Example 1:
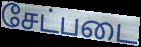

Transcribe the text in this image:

சேட்படை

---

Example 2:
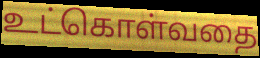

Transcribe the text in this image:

உட்கொள்வதை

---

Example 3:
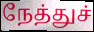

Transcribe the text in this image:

நேத்துச்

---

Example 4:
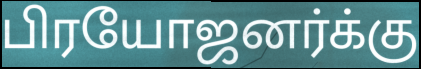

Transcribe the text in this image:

பிரயோஜனர்க்கு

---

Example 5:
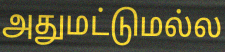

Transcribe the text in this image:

அதுமட்டுமல்ல